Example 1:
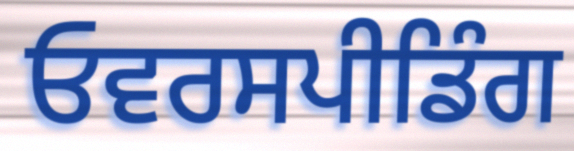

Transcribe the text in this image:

ਓਵਰਸਪੀਡਿੰਗ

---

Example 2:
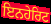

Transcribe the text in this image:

ਇਨਹੇਰਿਟ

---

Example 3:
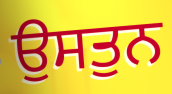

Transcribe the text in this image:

ਉਸਤੁਨ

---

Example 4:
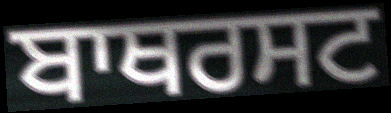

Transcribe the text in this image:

ਬਾਥਰਸਟ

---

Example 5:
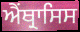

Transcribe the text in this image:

ਐਂਥ੍ਰਾਸਿਸ